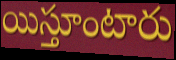
యిస్తూంటారు